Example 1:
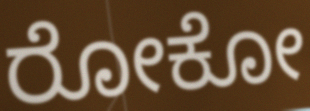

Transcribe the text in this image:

ರೋಕೋ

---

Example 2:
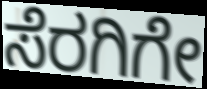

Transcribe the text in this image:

ಸೆರಗಿಗೇ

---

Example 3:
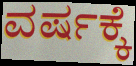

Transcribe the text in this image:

ವರ್ಷಕ್ಕೆ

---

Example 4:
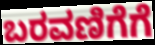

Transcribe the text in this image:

ಬರವಣಿಗೆಗೆ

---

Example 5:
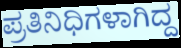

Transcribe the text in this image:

ಪ್ರತಿನಿಧಿಗಳಾಗಿದ್ದ